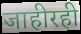
जाहीरही